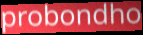
probondho